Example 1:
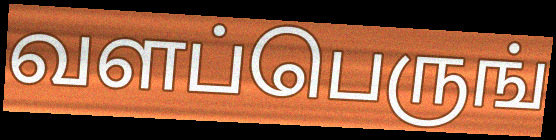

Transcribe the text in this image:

வளப்பெருங்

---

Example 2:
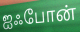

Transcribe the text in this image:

ஐஃபோன்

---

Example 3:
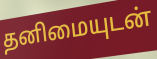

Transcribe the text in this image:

தனிமையுடன்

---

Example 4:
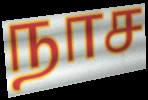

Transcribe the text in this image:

நாச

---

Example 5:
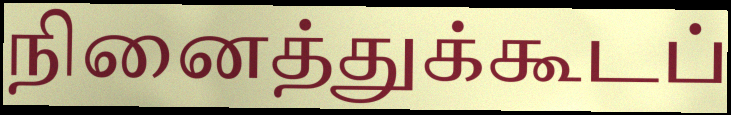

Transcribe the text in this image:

நினைத்துக்கூடப்